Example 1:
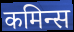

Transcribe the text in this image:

कमिन्स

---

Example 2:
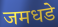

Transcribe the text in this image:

जमधडे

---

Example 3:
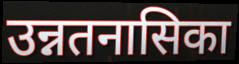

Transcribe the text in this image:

उन्नतनासिका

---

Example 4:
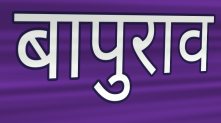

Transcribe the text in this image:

बापुराव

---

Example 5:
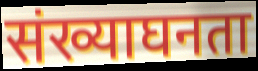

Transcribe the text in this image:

संख्याघनता